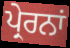
ਪ੍ਰੇਰਨਾਂ